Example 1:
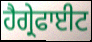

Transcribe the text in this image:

ਹੈਗ੍ਰੇਫਾਈਟ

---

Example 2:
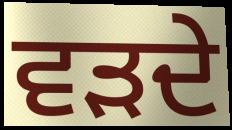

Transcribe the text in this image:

ਵੜਦੇ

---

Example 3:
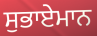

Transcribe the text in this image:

ਸੁਭਾਏਮਾਨ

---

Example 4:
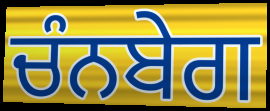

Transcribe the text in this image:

ਚੰਨਬੇਗ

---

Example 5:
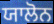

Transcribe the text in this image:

ਯਾਲੋਨ